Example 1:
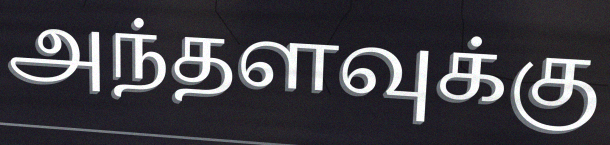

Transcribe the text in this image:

அந்தளவுக்கு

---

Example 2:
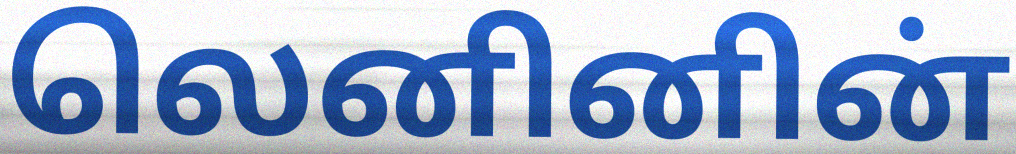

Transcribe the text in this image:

லெனினின்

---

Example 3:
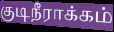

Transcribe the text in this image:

குடிநீராக்கம்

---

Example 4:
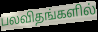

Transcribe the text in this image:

பலவிதங்களில்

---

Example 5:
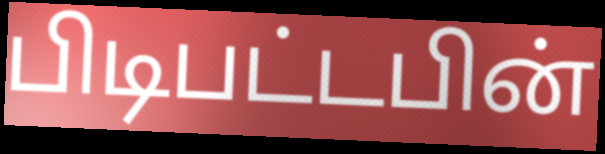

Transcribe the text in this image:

பிடிபட்டபின்